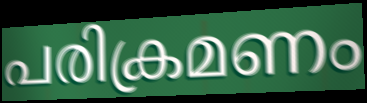
പരിക്രമണം